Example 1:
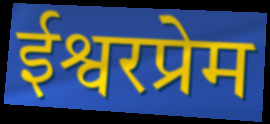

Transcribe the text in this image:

ईश्वरप्रेम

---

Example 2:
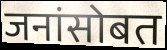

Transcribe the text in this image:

जनांसोबत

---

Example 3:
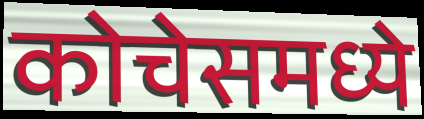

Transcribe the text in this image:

कोचेसमध्ये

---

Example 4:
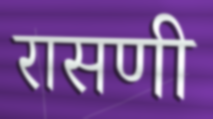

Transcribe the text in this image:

रासणी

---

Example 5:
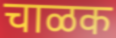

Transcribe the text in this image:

चाळक